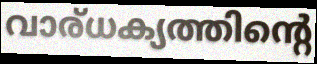
വാര്ധക്യത്തിന്റെ